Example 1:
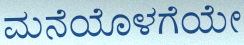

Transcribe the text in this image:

ಮನೆಯೊಳಗೆಯೇ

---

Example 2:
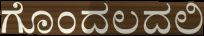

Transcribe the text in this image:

ಗೊಂದಲದಲಿ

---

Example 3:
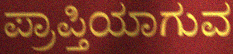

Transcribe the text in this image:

ಪ್ರಾಪ್ತಿಯಾಗುವ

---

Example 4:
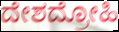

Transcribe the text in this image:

ದೇಶದ್ರೋಹಿ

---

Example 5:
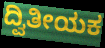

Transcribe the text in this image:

ದ್ವಿತೀಯಕ